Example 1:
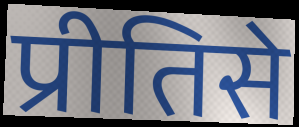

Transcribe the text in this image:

प्रीतिसे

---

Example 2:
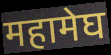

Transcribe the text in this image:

महामेघ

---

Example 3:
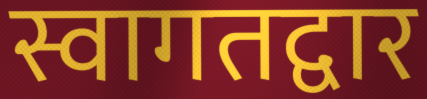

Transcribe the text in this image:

स्वागतद्वार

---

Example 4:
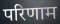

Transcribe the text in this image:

परिणाम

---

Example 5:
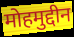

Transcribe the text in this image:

मोहमुद्दीन